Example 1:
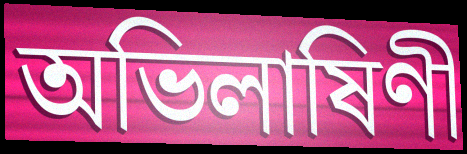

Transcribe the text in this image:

অভিলাষিণী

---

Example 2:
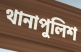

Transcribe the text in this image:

থানাপুলিশ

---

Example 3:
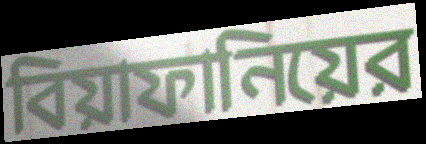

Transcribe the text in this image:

বিয়াফানিয়ের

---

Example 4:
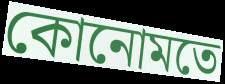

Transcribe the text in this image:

কোনোমতে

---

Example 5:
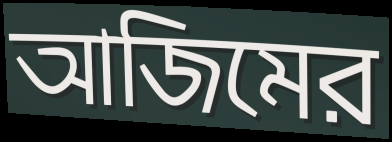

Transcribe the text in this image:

আজিমের